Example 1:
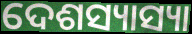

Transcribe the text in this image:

ଦେଶସ୍ୟାସ୍ୟା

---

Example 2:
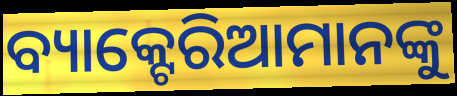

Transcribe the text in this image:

ବ୍ୟାକ୍ଟେରିଆମାନଙ୍କୁ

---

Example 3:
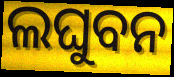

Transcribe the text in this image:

ଲଘୁବନ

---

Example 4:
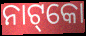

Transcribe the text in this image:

ନାଟ୍‌କୋ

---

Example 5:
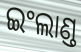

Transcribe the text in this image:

ଇଂଲାଣ୍ଡ